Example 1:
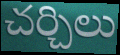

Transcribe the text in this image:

చర్చిలు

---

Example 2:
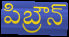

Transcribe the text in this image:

పిబ్రౌన్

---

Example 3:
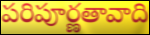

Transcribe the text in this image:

పరిపూర్ణతావాది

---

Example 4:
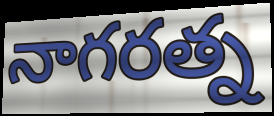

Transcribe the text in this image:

నాగరత్న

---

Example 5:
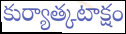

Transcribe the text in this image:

కుర్యాత్కటాక్షం